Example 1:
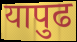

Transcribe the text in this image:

यापुढ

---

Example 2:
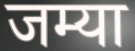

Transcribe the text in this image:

जम्या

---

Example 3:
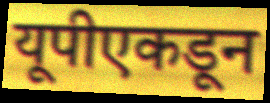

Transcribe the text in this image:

यूपीएकडून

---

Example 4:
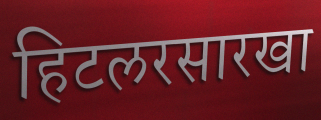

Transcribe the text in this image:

हिटलरसारखा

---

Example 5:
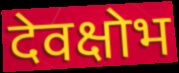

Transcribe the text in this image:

देवक्षोभ